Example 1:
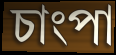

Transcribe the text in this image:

চাংপা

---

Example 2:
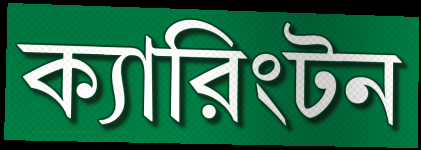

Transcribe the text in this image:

ক্যারিংটন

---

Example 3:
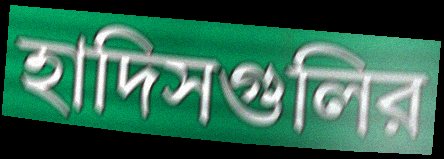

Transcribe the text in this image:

হাদিসগুলির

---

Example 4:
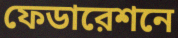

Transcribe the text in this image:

ফেডারেশনে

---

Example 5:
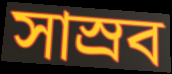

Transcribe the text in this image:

সাস্রব